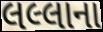
લલ્લાના